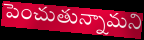
పెంచుతున్నామని